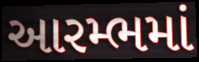
આરમ્ભમાં